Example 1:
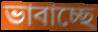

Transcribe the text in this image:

ভাবাচ্ছে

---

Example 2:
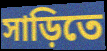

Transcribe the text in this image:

সাড়িতে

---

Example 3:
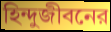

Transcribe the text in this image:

হিন্দুজীবনের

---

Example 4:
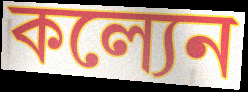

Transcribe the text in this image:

কল্যেন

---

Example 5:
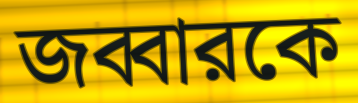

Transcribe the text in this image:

জব্বারকে